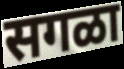
सगळा